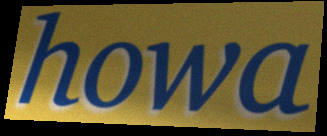
howa